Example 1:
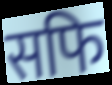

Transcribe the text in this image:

सफि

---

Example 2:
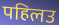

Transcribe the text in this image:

पहिलउ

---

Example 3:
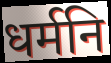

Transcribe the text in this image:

धर्मनि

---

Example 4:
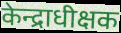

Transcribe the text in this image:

केन्द्राधीक्षक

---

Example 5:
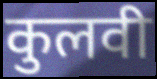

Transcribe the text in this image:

कुलवी